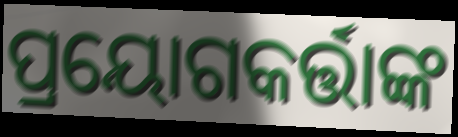
ପ୍ରୟୋଗକର୍ତ୍ତାଙ୍କ